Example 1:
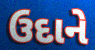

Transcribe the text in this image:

ઉદાને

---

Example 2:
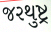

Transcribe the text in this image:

જરથુષ્ટ્ર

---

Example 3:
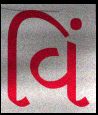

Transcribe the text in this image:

વિં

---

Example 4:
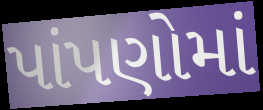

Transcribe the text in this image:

પાંપણોમાં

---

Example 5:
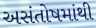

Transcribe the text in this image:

અસંતોષમાંથી